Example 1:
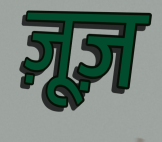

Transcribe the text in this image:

ज़ूज़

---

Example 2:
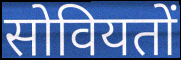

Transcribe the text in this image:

सोवियतों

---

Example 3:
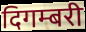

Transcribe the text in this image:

दिगम्बरी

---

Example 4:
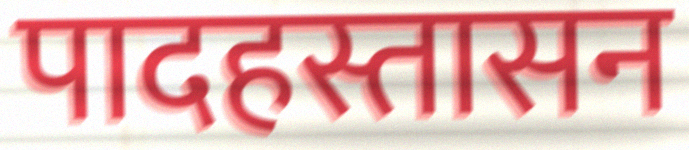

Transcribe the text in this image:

पादहस्तासन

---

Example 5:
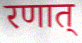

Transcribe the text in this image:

रणात्